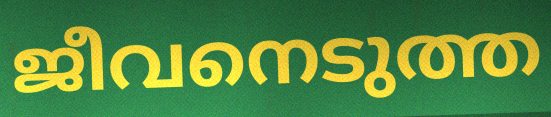
ജീവനെടുത്ത